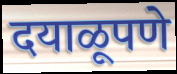
दयाळूपणे